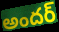
అందర్